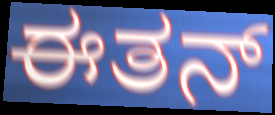
ಈತನ್